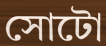
সোটো